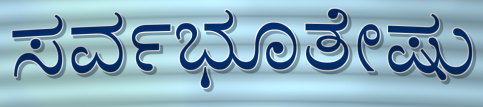
ಸರ್ವಭೂತೇಷು